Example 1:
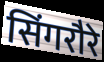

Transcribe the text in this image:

सिंगरौरे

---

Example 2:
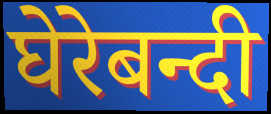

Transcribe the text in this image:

घेरेबन्दी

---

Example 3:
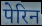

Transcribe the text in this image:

पेरिन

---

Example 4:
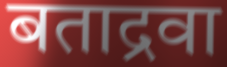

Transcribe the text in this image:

बताद्रवा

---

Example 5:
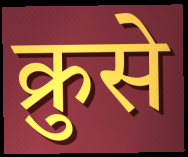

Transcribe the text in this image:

क्रुसे